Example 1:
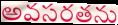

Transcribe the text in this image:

అవసరతను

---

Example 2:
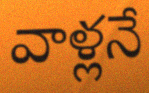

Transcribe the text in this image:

వాళ్లనే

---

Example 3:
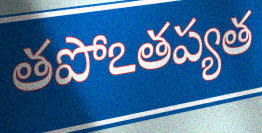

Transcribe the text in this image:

తపోఽతప్యత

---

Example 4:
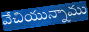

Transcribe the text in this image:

వేచియున్నాము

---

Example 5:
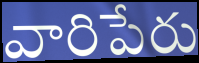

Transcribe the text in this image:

వారిపేరు